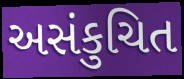
અસંકુચિત